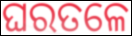
ଘରତଳେ